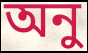
অনু